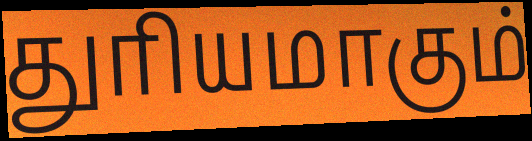
துரியமாகும்